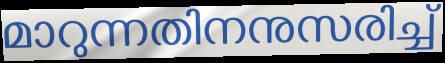
മാറുന്നതിനനുസരിച്ച്